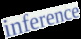
inference